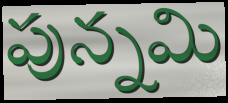
పున్నమి